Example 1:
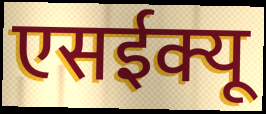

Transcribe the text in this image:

एसईक्यू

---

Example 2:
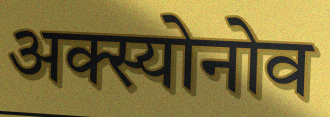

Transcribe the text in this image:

अक्स्योनोव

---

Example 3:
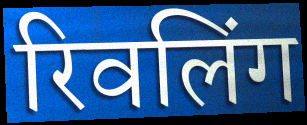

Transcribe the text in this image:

रिवलिंग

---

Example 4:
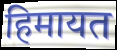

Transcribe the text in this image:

हिमायत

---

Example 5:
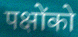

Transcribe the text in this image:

पक्षोंको